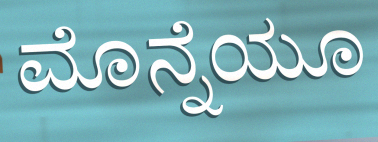
ಮೊನ್ನೆಯೂ